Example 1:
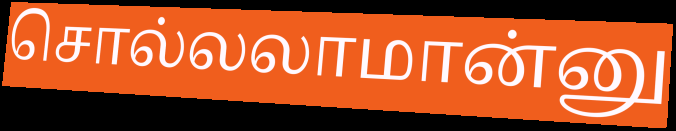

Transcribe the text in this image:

சொல்லலாமான்னு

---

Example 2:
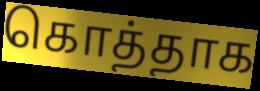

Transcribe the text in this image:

கொத்தாக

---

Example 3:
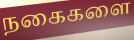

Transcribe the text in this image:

நகைகளை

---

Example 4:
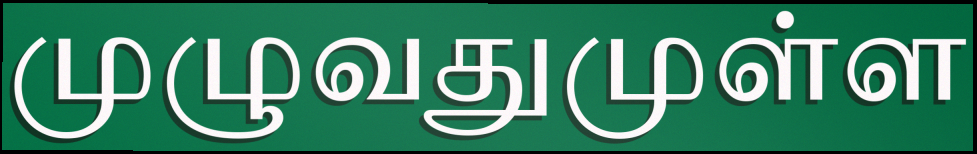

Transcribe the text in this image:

முழுவதுமுள்ள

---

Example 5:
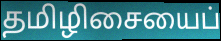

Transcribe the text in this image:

தமிழிசையைப்